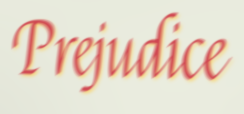
Prejudice